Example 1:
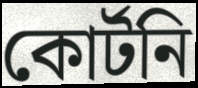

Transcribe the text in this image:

কোর্টনি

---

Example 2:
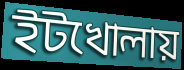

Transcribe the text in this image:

ইটখোলায়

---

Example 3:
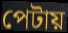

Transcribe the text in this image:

পেটায়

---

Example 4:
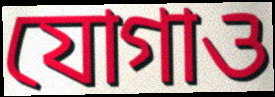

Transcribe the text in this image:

যোগাও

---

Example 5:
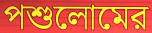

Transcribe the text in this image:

পশুলোমের